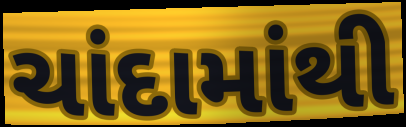
ચાંદામાંથી